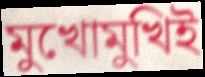
মুখোমুখিই